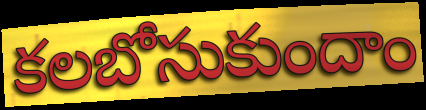
కలబోసుకుందాం